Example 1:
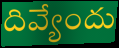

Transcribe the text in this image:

దివ్యేందు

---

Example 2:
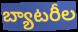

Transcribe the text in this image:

బ్యాటరీల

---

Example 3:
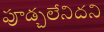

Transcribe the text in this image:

పూడ్చలేనిదని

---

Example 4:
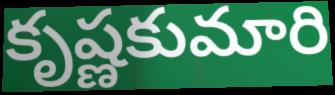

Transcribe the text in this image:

కృష్ణకుమారి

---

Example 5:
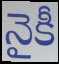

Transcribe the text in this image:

నైకీ